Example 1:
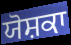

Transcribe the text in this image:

ਯੋਸ਼ਕਾ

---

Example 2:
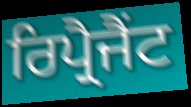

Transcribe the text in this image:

ਰਿਪ੍ਰੈਜੈਂਟ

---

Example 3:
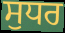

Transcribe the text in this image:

ਸੁਧਰ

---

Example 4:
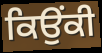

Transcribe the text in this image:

ਕਿਉਂਕੀ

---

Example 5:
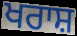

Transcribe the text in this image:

ਖਰਾਸ਼